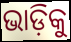
ଭାଡ଼ିକୁ